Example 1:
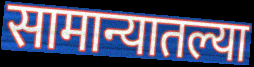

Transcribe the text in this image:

सामान्यातल्या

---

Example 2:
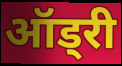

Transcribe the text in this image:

ऑड्री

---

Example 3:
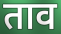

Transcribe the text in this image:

ताव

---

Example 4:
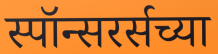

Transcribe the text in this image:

स्पॉन्सरर्सच्या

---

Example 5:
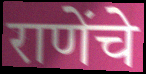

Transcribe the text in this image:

राणेंचे